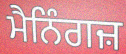
ਮੈਨਿੰਗਜ਼